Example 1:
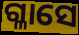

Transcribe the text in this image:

ଗ୍ଳାସେ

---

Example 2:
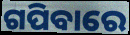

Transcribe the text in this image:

ଗପିବାରେ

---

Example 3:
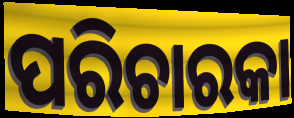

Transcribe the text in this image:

ପରିଚାରକା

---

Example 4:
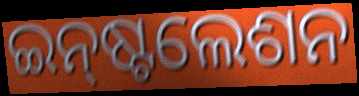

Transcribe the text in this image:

ଇନ୍‌ଷ୍ଟଲେଶନ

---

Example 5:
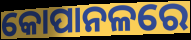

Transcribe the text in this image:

କୋପାନଳରେ